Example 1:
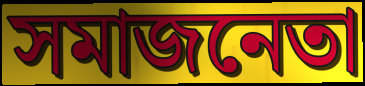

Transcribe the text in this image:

সমাজনেতা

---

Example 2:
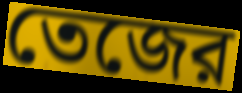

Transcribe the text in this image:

তেজের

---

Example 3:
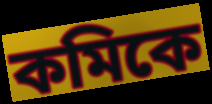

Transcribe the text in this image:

কমিকে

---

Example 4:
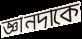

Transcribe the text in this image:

জ্ঞানদাকে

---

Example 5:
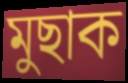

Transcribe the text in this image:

মুছাক